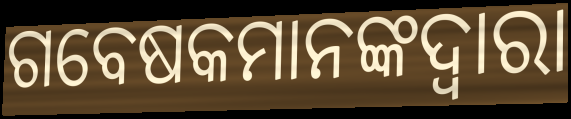
ଗବେଷକମାନଙ୍କଦ୍ୱାରା